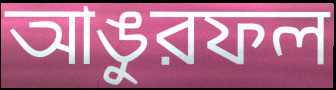
আঙুরফল